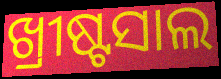
ଖ୍ରୀଷ୍ଟସାଲ